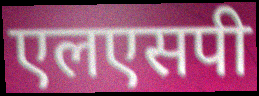
एलएसपी